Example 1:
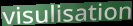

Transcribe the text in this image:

visulisation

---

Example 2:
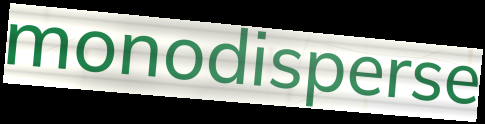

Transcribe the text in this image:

monodisperse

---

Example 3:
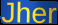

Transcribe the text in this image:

Jher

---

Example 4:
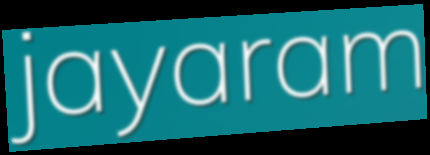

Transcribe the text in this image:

jayaram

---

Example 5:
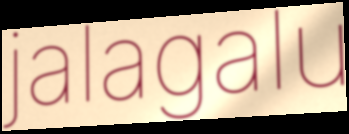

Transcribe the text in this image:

jalagalu